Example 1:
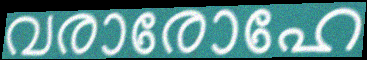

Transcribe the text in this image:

വരാരോഹേ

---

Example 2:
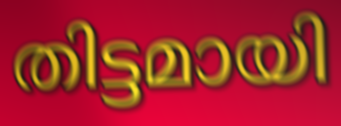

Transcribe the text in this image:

തിട്ടമായി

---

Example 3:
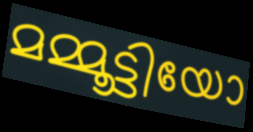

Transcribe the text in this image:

മമ്മൂട്ടിയോ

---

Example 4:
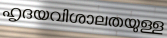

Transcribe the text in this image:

ഹൃദയവിശാലതയുള്ള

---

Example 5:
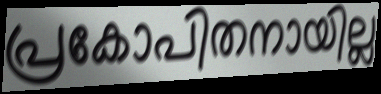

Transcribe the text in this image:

പ്രകോപിതനായില്ല